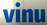
vinu